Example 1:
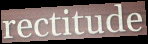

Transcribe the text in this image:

rectitude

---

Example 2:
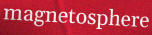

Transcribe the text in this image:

magnetosphere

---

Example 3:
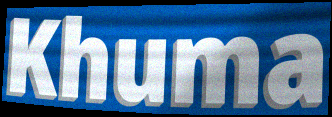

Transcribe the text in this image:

Khuma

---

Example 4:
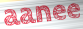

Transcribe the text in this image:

aanee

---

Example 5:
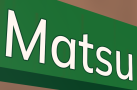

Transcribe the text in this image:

Matsu